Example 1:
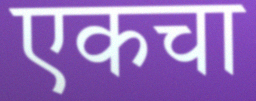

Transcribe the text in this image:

एकचा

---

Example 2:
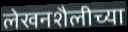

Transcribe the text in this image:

लेखनशैलीच्या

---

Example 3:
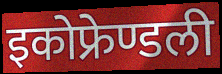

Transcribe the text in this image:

इकोफ्रेण्डली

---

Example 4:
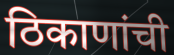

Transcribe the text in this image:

ठिकाणांची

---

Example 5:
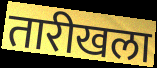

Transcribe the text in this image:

तारीखला